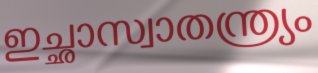
ഇച്ഛാസ്വാതന്ത്ര്യം